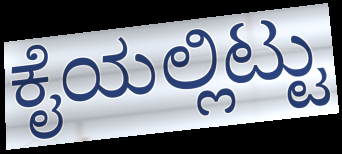
ಕೈಯಲ್ಲಿಟ್ಟು